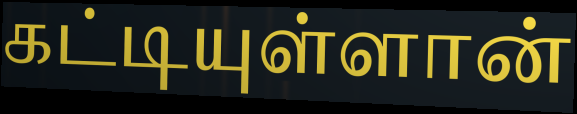
கட்டியுள்ளான்